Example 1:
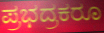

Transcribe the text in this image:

ಪ್ರಭದ್ರಕರೂ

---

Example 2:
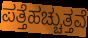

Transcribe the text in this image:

ಪತ್ತೆಹಚ್ಚುತ್ತವೆ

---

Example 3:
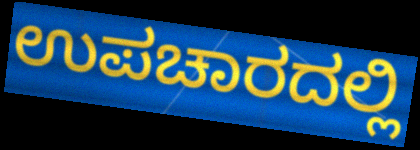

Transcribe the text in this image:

ಉಪಚಾರದಲ್ಲಿ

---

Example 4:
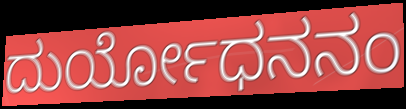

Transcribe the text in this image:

ದುರ್ಯೋಧನನಂ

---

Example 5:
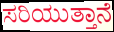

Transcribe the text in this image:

ಸರಿಯುತ್ತಾನೆ